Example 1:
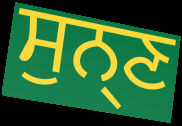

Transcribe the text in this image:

ਸੁਨ੍ਣ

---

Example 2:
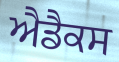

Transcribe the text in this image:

ਐਡੈਕਸ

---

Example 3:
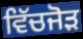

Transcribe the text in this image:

ਵਿੱਚਜੋੜ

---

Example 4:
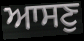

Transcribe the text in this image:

ਆਸਣੁ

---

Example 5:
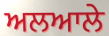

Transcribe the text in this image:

ਅਲਆਲੇ